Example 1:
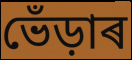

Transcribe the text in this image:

ভেঁড়াৰ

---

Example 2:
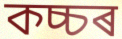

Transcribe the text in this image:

কচ্চৰ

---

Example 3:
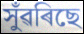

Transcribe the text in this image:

সুঁৱৰিছে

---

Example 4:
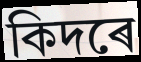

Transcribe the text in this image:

কিদৰে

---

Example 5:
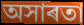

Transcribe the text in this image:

অসাৰতা